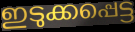
ഇടുക്കപ്പെട്ട